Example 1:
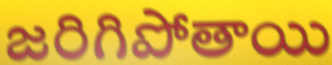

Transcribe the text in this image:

జరిగిపోతాయి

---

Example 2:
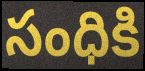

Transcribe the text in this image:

సంధికి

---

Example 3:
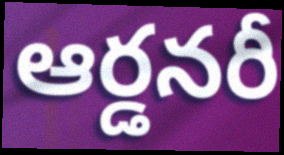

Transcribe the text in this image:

ఆర్డనరీ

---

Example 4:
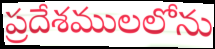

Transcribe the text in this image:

ప్రదేశములలోను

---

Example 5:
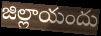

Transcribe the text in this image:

జిల్లాయందు